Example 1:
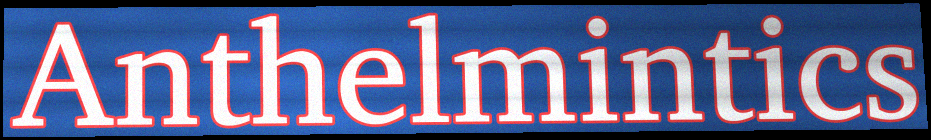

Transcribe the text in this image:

Anthelmintics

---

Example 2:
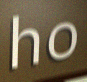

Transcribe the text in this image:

ho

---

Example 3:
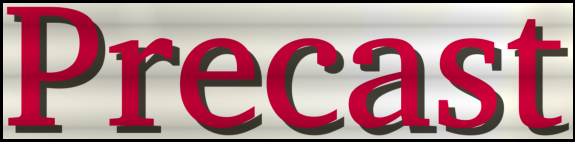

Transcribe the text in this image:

Precast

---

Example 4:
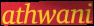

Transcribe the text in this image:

athwani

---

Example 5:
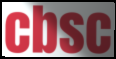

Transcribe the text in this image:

cbsc